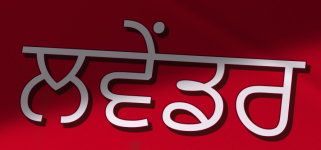
ਲਵੇਂਡਰ